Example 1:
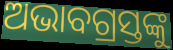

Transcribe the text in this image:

ଅଭାବଗ୍ରସ୍ତଙ୍କୁ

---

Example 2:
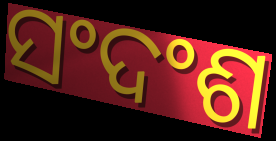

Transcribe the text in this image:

ସଂଦଂଶ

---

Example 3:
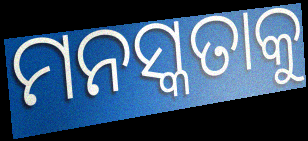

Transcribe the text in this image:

ମନସ୍କତାକୁ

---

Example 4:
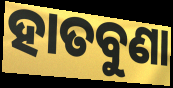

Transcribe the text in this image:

ହାତବୁଣା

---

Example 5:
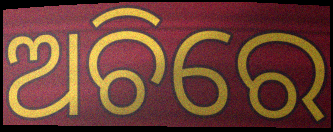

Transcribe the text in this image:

ଅଚିରେ